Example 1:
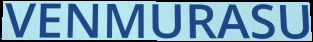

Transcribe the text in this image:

VENMURASU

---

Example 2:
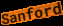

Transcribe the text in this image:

Sanford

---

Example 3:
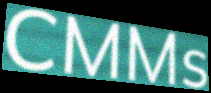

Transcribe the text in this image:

CMMs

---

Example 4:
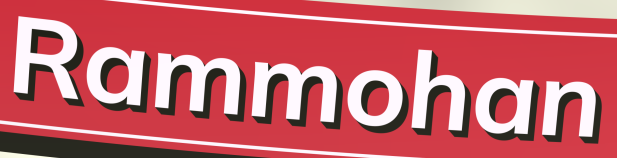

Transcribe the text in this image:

Rammohan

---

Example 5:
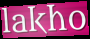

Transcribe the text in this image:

lakho